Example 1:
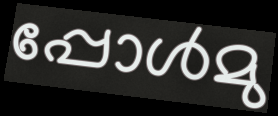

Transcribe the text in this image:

പ്പോൾമു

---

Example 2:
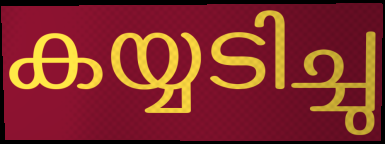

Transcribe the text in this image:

കയ്യടിച്ചു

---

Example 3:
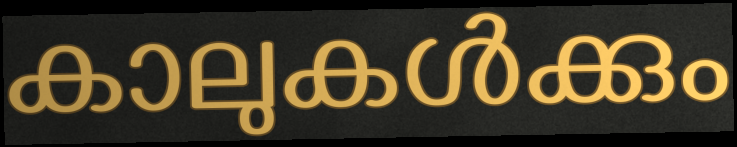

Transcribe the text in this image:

കാലുകൾക്കും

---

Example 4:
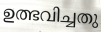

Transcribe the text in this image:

ഉത്ഭവിച്ചതു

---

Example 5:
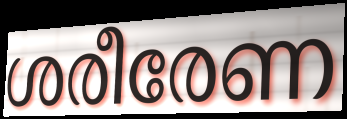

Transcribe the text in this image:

ശരീരേണ